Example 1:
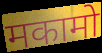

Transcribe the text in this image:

मकामो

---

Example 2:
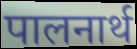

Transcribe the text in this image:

पालनार्थ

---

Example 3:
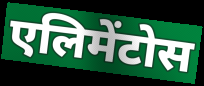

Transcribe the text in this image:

एलिमेंटोस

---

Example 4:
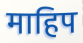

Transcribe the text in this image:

माहिप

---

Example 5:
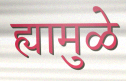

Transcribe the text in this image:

ह्यामुळे